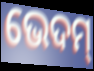
ଭେଦମ୍